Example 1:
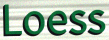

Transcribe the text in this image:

Loess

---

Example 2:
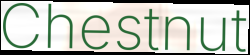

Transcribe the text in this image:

Chestnut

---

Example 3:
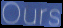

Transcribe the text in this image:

Ours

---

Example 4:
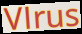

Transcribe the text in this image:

VIrus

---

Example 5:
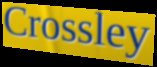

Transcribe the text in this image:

Crossley